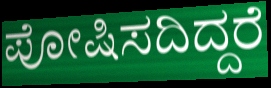
ಪೋಷಿಸದಿದ್ದರೆ